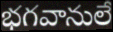
భగవానులే